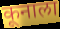
कूनाला